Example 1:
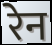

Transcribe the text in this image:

रेन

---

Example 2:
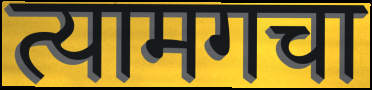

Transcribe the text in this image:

त्यामगचा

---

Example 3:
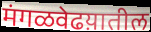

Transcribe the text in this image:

मंगळवेढय़ातील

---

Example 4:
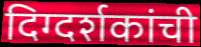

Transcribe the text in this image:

दिग्दर्शकांची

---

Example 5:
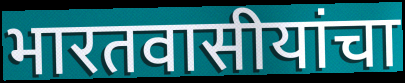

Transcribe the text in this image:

भारतवासीयांचा